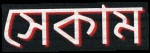
সেকাম